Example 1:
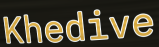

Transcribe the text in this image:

Khedive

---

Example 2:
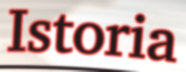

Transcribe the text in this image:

Istoria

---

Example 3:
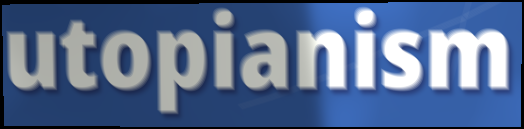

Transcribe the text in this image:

utopianism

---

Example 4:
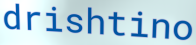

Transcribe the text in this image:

drishtino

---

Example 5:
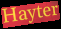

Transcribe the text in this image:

Hayter